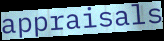
appraisals